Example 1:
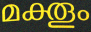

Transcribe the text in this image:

മക്തൂം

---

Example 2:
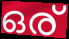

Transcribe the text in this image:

ഒര്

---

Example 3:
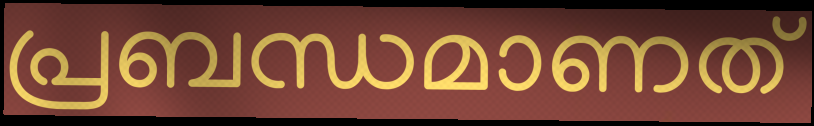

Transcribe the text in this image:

പ്രബന്ധമാണത്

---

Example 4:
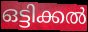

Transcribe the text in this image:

ഒട്ടിക്കൽ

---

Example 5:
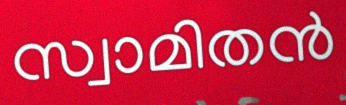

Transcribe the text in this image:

സ്വാമിതൻ